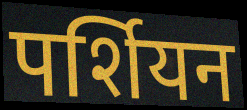
पर्शियन